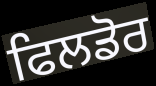
ਫਿਲਡੋਰ